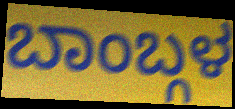
ಬಾಂಬ್ಗಳ